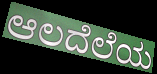
ಆಲದೆಲೆಯ